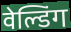
वेल्डिंग